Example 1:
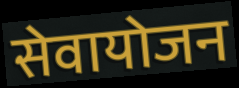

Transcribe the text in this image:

सेवायोजन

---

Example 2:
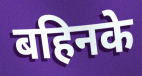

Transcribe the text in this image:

बहिनके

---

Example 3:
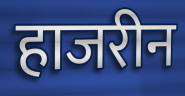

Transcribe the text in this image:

हाजरीन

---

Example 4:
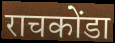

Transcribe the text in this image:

राचकोंडा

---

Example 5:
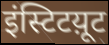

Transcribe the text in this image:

इंस्टिटय़ूट